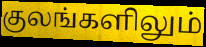
குலங்களிலும்